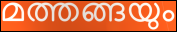
മത്തങ്ങയും